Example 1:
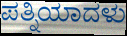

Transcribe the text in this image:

ಪತ್ನಿಯಾದಳು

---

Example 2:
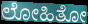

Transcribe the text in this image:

ಲೋಹಿತೋ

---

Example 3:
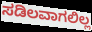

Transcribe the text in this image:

ಸಡಿಲವಾಗಲಿಲ್ಲ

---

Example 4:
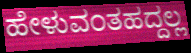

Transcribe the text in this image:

ಹೇಳುವಂತಹದ್ದಲ್ಲ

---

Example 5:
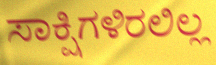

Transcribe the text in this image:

ಸಾಕ್ಷಿಗಳಿರಲಿಲ್ಲ